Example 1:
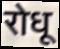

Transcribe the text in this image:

रोधू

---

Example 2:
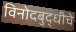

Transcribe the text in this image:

विनोदबुद्धीचे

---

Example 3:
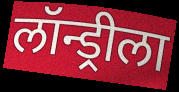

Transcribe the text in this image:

लॉन्ड्रीला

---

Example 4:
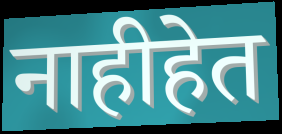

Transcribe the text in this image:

नाहीहेत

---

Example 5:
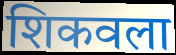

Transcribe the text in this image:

शिकवला